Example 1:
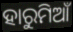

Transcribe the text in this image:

ହାରୁମିଆଁ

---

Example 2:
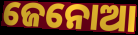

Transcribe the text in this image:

ଜେନୋଆ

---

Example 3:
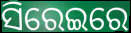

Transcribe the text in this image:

ସିରେଇରେ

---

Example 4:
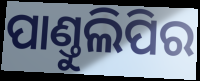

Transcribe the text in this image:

ପାଣ୍ତୁଲିପିର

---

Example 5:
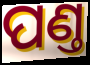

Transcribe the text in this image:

ପଣ୍ତ